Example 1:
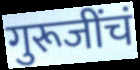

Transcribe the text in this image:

गुरूजींचं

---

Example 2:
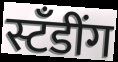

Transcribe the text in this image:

स्टँडींग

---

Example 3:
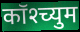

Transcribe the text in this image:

कॉश्च्युम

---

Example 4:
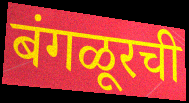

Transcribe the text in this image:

बंगळूरची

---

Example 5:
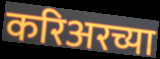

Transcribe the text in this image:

करिअरच्या